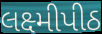
લક્ષ્મીપીઠ